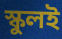
স্কুলই